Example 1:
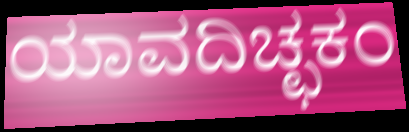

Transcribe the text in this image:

ಯಾವದಿಚ್ಛಕಂ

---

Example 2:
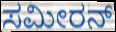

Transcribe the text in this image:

ಸಮೀರನ್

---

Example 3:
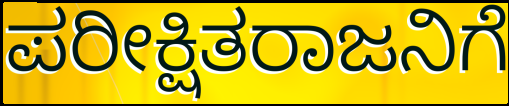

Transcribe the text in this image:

ಪರೀಕ್ಷಿತರಾಜನಿಗೆ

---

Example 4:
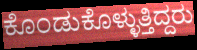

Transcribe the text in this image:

ಕೊಂಡುಕೊಳ್ಳುತ್ತಿದ್ದರು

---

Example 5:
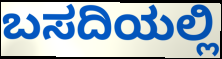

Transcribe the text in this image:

ಬಸದಿಯಲ್ಲಿ